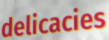
delicacies